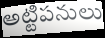
అట్టిపనులు